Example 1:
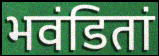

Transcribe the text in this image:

भवंडितां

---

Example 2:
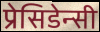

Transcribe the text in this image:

प्रेसिडेन्सी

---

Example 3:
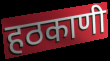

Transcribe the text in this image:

हठकाणी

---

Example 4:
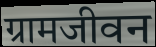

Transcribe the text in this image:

ग्रामजीवन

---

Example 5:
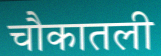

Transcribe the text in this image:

चौकातली